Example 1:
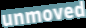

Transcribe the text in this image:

unmoved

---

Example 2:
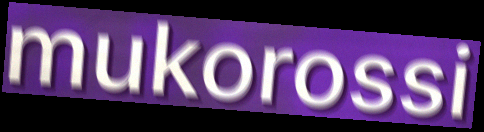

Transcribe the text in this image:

mukorossi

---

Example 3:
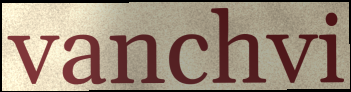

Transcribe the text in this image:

vanchvi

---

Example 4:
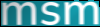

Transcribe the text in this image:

msm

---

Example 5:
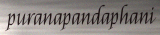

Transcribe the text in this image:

puranapandaphani